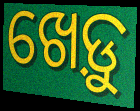
ଖେଡ଼ୁ